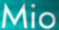
Mio